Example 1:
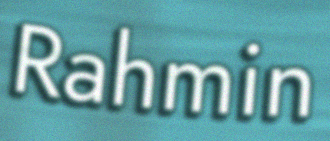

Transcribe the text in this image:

Rahmin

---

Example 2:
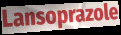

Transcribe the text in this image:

Lansoprazole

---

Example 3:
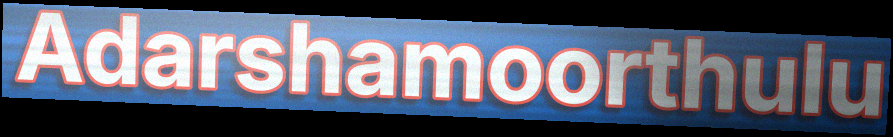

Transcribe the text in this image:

Adarshamoorthulu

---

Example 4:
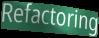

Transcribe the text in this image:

Refactoring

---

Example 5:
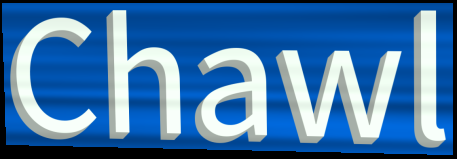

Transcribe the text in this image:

Chawl